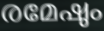
രമേഷും